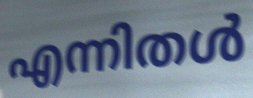
എന്നിതൾ